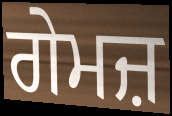
ਗੇਮਜ਼